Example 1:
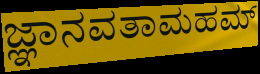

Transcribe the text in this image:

ಜ್ಞಾನವತಾಮಹಮ್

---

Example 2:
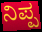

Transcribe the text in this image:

ನಿಪ್ಪ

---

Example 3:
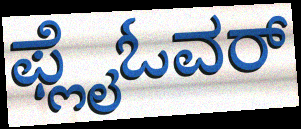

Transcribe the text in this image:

ಫ್ಲೈಓವರ್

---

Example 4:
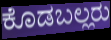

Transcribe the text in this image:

ಕೊಡಬಲ್ಲರು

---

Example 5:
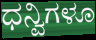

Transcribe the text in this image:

ಧನ್ವಿಗಳೂ